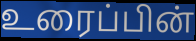
உரைப்பின்